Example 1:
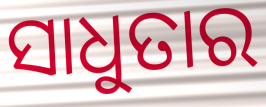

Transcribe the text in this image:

ସାଧୁତାର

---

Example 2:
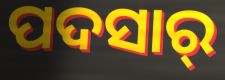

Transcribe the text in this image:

ପଦସାର୍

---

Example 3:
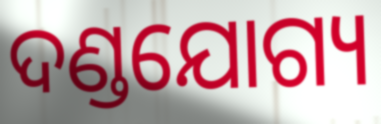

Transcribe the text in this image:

ଦଣ୍ଡଯୋଗ୍ୟ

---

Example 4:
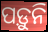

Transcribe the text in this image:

ପଡ଼ୁନି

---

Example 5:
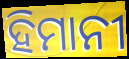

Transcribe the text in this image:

ହିମାନୀ